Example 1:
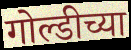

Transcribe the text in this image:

गोल्डीच्या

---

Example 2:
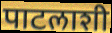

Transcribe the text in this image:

पाटलाशी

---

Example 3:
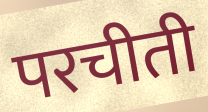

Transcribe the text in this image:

परचीती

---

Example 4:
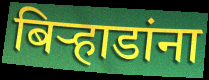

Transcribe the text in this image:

बिऱ्हाडांना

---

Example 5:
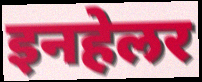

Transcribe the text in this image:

इनहेलर